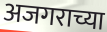
अजगराच्या